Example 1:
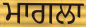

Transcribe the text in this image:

ਮਾਗਲਾ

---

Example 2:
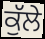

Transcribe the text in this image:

ਕੁੱਲੇ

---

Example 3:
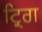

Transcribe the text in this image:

ਟ੍ਰਿਗ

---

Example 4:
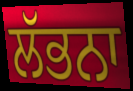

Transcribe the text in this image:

ਲੱਭਨਾ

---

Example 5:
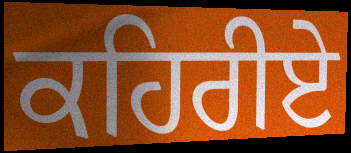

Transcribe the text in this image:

ਕਹਿਰੀਏ